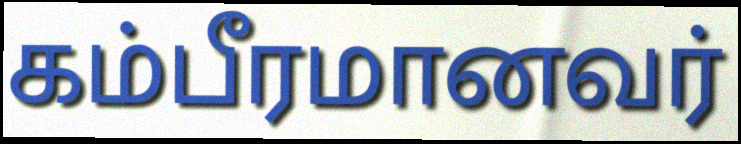
கம்பீரமானவர்